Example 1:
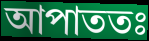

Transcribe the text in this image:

আপাততঃ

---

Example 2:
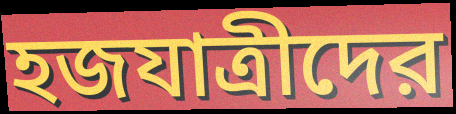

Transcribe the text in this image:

হজযাত্রীদের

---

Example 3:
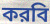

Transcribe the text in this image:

করবি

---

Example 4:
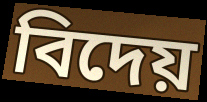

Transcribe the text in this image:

বিদেয়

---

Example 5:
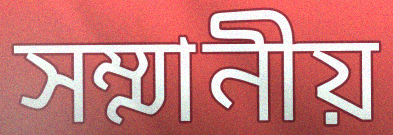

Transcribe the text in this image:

সম্মানীয়